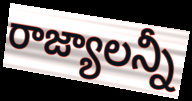
రాజ్యాలన్నీ